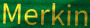
Merkin